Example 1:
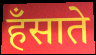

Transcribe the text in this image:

हँसाते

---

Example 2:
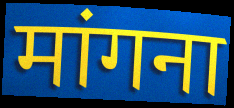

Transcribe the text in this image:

मांगना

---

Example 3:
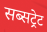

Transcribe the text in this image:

सब्सट्रेट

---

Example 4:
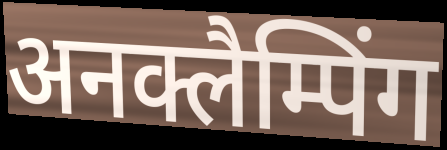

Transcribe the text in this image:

अनक्लैम्पिंग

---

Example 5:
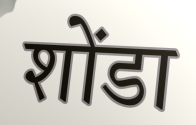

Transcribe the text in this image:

शोंडा